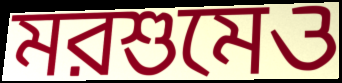
মরশুমেও